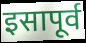
इसापूर्व